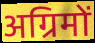
अग्रिमों